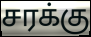
சரக்கு